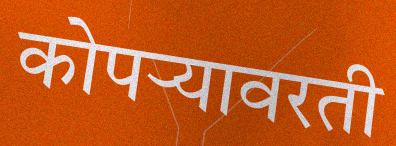
कोपऱ्यावरती